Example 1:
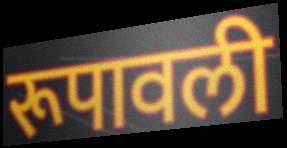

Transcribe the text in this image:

रूपावली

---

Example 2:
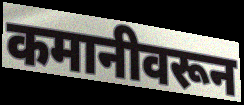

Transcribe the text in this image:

कमानीवरून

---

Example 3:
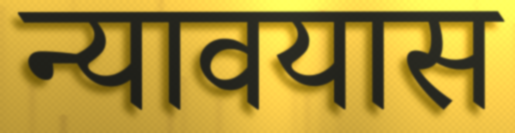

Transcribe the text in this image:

न्यावयास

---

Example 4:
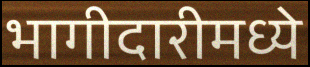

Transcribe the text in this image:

भागीदारीमध्ये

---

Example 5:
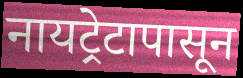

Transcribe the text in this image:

नायट्रेटापासून